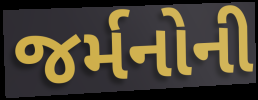
જર્મનોની